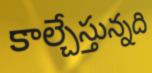
కాల్చేస్తున్నది